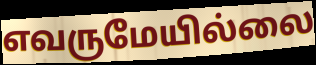
எவருமேயில்லை